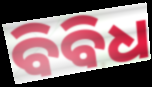
ବିବିଧ